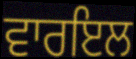
ਵਾਰਇਲ